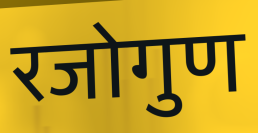
रजोगुण